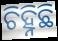
ଚିହ୍ନିଛି